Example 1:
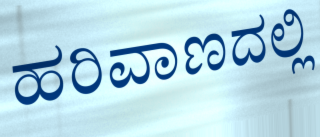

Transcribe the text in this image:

ಹರಿವಾಣದಲ್ಲಿ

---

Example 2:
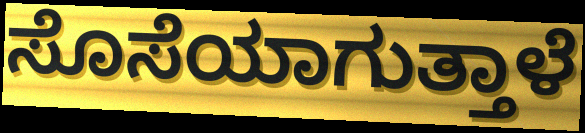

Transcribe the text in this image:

ಸೊಸೆಯಾಗುತ್ತಾಳೆ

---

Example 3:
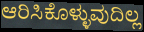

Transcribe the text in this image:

ಆರಿಸಿಕೊಳ್ಳುವುದಿಲ್ಲ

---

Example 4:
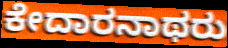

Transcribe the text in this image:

ಕೇದಾರನಾಥರು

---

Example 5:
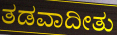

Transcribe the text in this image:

ತಡವಾದೀತು